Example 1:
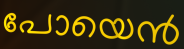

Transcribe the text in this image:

പോയെൻ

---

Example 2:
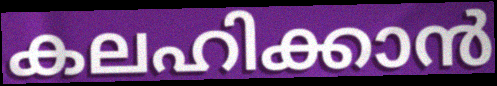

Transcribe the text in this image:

കലഹിക്കാൻ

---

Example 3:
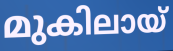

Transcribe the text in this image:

മുകിലായ്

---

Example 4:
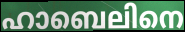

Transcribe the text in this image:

ഹാബെലിനെ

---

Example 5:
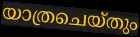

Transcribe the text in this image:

യാത്രചെയ്തും